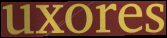
uxores